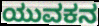
ಯುವಕನ